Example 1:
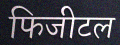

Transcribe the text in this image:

फिजीटल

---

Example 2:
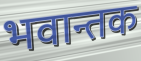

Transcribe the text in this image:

भवान्तक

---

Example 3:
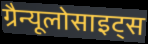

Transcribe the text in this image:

ग्रैन्यूलोसाइट्स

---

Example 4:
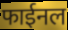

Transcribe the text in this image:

फाईनल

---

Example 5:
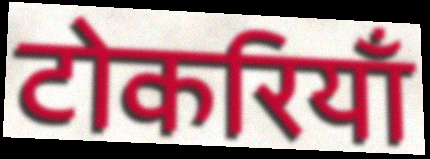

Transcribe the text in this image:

टोकरियाँ